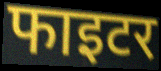
फाइटर